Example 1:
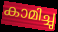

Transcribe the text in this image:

കാമിച്ചു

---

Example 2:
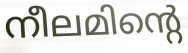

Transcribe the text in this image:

നീലമിന്റെ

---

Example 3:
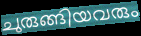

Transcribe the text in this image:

ചുരുങ്ങിയവരും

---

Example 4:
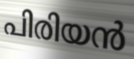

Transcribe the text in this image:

പിരിയൻ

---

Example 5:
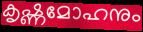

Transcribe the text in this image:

കൃഷ്ണമോഹനും